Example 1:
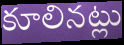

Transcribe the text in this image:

కూలినట్లు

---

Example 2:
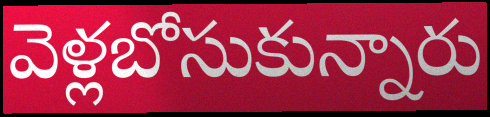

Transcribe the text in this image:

వెళ్లబోసుకున్నారు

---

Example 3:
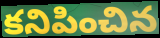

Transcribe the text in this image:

కనిపించిన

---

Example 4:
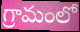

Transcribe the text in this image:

గ్రామంలో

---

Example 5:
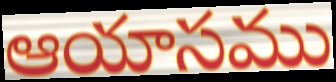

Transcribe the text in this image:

ఆయాసము